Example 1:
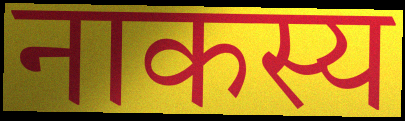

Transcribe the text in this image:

नाकस्य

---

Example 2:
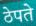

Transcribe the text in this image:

ठेपते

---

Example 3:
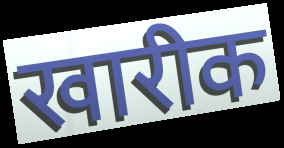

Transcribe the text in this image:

खारीक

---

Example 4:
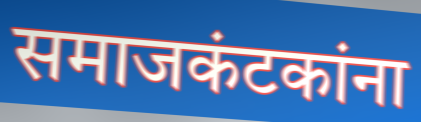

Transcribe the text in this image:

समाजकंटकांना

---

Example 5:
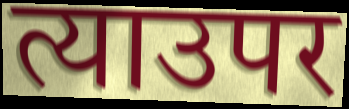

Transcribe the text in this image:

त्याउपर